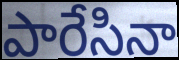
పారేసినా